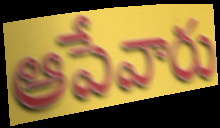
ఆపేవారు